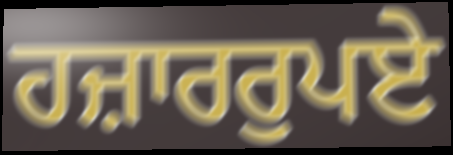
ਹਜ਼ਾਰਰੁਪਏ